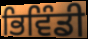
ਭਿਵਿੰਡੀ